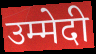
उम्मेदी